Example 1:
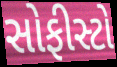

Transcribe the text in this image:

સોફીસ્ટો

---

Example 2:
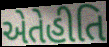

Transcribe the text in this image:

એતેહીતિ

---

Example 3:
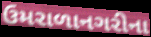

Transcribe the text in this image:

ઉમરાળાનગરીના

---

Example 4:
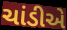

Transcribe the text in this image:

ચાંડીએ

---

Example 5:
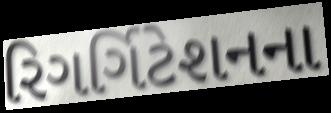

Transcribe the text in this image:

રિગર્ગિટેશનના